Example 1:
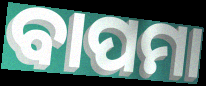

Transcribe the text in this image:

ବାପମା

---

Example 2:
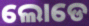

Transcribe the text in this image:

ଲୋଡେ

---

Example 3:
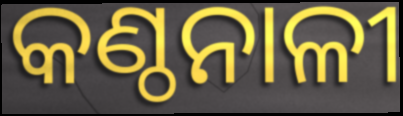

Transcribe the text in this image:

କଣ୍ଠନାଳୀ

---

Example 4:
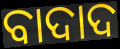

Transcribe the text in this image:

ବାଦାଦ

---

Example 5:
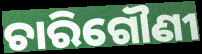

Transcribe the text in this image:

ଚାରିଗୌଣୀ